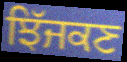
ਝਿੱਜਕਣ